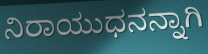
ನಿರಾಯುಧನನ್ನಾಗಿ